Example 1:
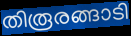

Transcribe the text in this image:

തിരൂരങ്ങാടി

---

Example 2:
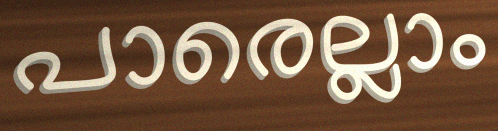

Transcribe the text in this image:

പാരെല്ലാം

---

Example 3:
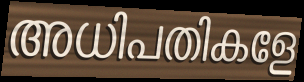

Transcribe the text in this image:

അധിപതികളേ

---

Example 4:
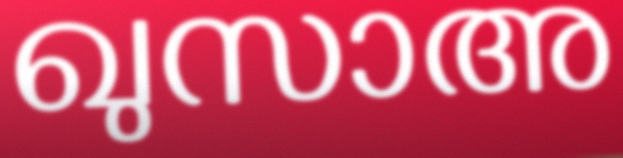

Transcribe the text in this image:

ഖുസാഅ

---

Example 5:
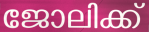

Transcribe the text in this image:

ജോലിക്ക്